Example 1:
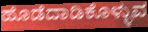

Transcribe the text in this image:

ಹೊಡೆದಾಡಿಕೊಳ್ಳುವ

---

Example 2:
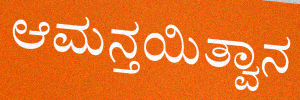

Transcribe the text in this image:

ಆಮನ್ತಯಿತ್ವಾನ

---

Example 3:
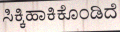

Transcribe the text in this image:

ಸಿಕ್ಕಿಹಾಕಿಕೊಂಡಿದೆ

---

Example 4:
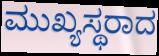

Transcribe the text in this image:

ಮುಖ್ಯಸ್ಥರಾದ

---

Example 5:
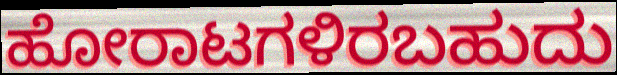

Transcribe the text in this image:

ಹೋರಾಟಗಳಿರಬಹುದು